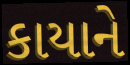
કાયાને